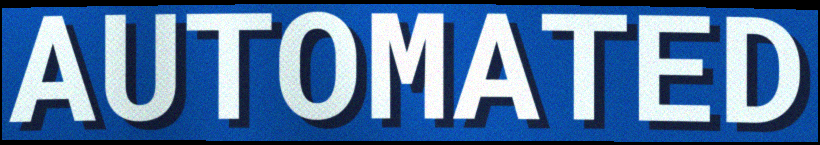
AUTOMATED